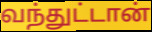
வந்துட்டான்